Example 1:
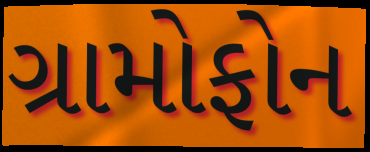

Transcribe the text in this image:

ગ્રામોફોન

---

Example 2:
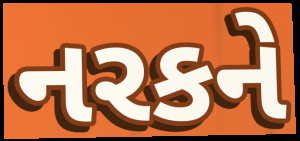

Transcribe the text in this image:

નરકને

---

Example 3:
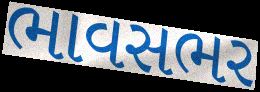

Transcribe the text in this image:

ભાવસભર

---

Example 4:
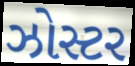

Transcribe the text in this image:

ઝોસ્ટર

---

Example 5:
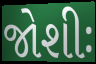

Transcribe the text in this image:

જોશીઃ